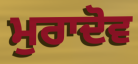
ਮੁਰਾਦੋਵ